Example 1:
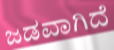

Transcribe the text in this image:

ಜಡವಾಗಿದೆ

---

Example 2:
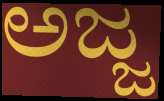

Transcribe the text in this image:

ಅಜ್ಜ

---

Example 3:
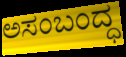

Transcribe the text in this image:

ಅಸಂಬಂದ್ಧ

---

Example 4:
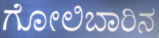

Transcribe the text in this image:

ಗೋಲಿಬಾರಿನ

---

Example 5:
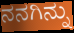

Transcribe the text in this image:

ನನಗಿನ್ನು